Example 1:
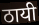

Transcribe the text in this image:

ठायी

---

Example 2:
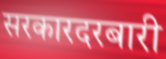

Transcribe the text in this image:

सरकारदरबारी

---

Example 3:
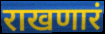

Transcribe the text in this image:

राखणारं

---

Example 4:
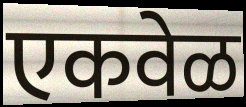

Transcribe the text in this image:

एकवेळ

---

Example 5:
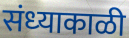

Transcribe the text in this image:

संध्‍याकाळी